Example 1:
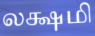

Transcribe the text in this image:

லக்ஷமி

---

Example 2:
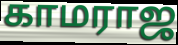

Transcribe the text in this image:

காமராஜ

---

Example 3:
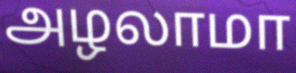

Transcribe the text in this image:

அழலாமா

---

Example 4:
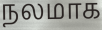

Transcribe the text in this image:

நலமாக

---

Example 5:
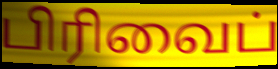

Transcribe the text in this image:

பிரிவைப்